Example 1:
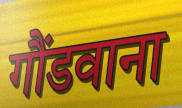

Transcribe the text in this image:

गौंडवाना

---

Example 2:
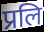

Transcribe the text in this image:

प्रलि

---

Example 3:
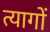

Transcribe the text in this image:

त्यागों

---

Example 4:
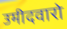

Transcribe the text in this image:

उमीदवारो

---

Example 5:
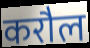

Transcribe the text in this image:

करौल